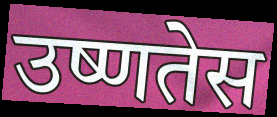
उष्णतेस